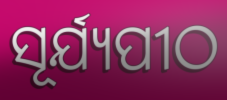
ସୂର୍ଯ୍ୟପୀଠ